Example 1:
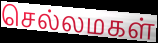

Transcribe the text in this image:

செல்லமகள்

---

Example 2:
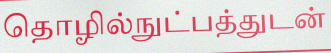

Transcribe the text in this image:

தொழில்நுட்பத்துடன்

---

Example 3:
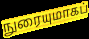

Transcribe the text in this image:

நுரையுமாகப்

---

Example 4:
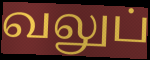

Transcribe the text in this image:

வலுப்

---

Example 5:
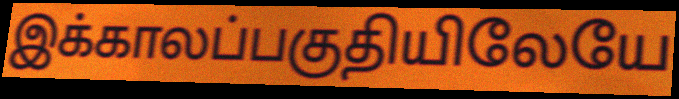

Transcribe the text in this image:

இக்காலப்பகுதியிலேயே